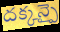
దక్కన్పై